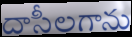
దాసీలగాను